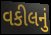
વકીલનું